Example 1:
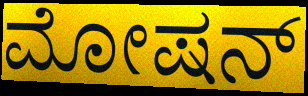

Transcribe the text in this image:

ಮೋಷನ್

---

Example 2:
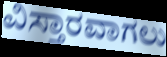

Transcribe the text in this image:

ವಿಸ್ತಾರವಾಗಲು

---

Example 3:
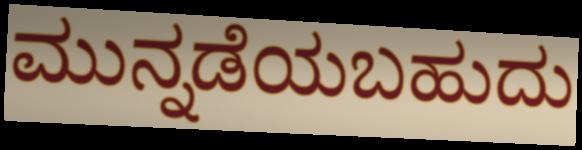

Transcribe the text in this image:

ಮುನ್ನಡೆಯಬಹುದು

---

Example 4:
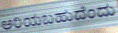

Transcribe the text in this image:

ಅರಿಯಬಹುದೆಂದು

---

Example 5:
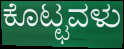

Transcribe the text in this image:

ಕೊಟ್ಟವಳು